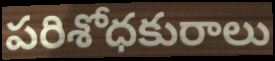
పరిశోధకురాలు